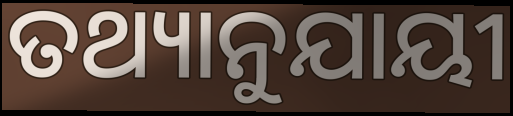
ତଥ୍ୟାନୁଯାୟୀ